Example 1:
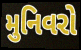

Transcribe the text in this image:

મુનિવરો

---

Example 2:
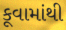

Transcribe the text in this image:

કૂવામાંથી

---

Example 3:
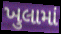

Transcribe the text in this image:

ખુલામાં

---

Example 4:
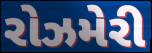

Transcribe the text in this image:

રોઝમેરી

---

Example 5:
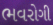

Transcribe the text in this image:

ભવરોગી